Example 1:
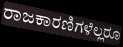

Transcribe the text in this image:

ರಾಜಕಾರಣಿಗಳೆಲ್ಲರೂ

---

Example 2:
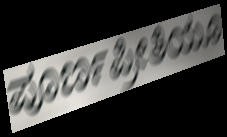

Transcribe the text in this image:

ಪೂರ್ಣಪ್ರೀತಿಯೂ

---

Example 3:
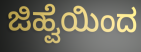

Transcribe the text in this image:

ಜಿಹ್ವೆಯಿಂದ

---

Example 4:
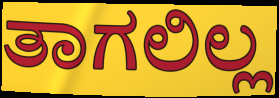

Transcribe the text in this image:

ತಾಗಲಿಲ್ಲ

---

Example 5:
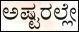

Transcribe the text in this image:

ಅಷ್ಟರಲ್ಲೇ